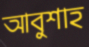
আবুশাহ